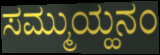
ಸಮ್ಮುಯ್ಹನಂ